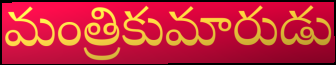
మంత్రికుమారుడు